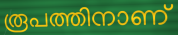
രൂപത്തിനാണ്